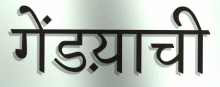
गेंडय़ाची